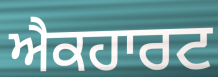
ਐਕਹਾਰਟ